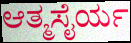
ಆತ್ಮಸೈರ್ಯ